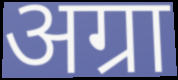
अग्रा